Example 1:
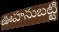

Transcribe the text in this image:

ఊహనుబట్టి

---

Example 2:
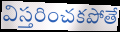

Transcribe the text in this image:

విస్తరించకపోతే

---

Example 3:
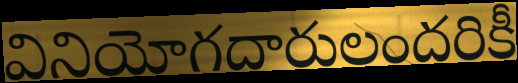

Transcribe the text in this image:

వినియోగదారులందరికీ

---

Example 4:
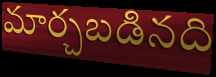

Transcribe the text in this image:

మార్చబడినది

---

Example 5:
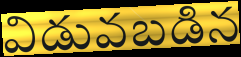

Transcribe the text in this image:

విడువబడిన